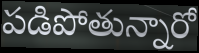
పడిపోతున్నారో